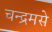
चन्द्रमसे